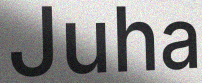
Juha